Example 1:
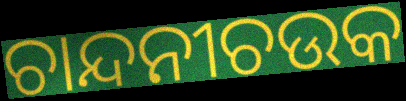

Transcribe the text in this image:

ଚାନ୍ଦନୀଚଉକ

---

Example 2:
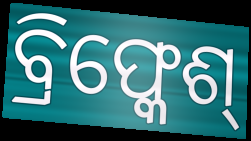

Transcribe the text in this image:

ବ୍ରିଫ୍କେଶ୍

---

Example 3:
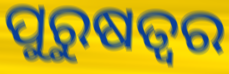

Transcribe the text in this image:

ପୁରୁଷତ୍ଵର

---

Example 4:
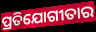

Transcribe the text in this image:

ପ୍ରତିଯୋଗୀତାର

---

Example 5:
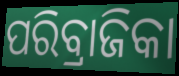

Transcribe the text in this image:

ପରିବ୍ରାଜିକା